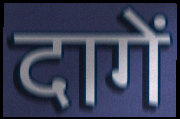
दागें